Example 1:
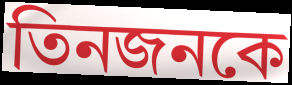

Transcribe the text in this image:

তিনজনকে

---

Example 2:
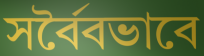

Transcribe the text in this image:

সর্বৈবভাবে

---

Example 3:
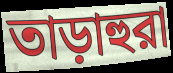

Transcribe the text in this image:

তাড়াহুরা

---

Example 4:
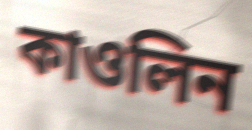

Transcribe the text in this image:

কাওলিন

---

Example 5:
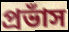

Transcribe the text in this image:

প্রভাঁস